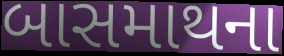
બાસમાથના